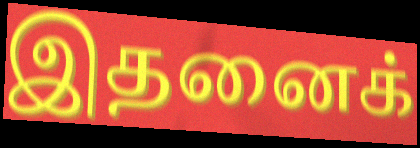
இதனைக்